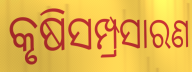
କୃଷିସମ୍ପ୍ରସାରଣ